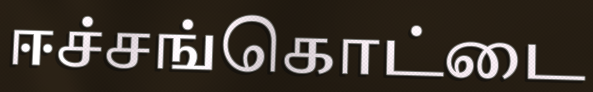
ஈச்சங்கொட்டை